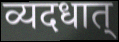
व्यदधात्